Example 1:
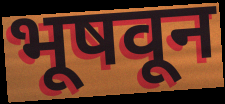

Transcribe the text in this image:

भूषवून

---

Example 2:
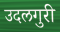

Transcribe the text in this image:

उदलगुरी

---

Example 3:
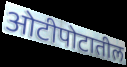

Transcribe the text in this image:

ओटीपोटातील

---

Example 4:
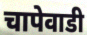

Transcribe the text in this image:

चापेवाडी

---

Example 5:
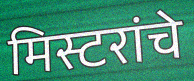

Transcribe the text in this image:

मिस्टरांचे